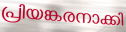
പ്രിയങ്കരനാക്കി